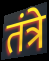
तंत्रे